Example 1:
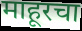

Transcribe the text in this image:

माहूरचा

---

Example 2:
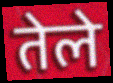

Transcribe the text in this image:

तेले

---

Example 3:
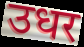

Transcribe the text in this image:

उधर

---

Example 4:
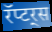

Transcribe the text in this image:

रॅप्टर्स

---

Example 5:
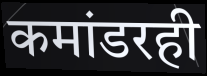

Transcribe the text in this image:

कमांडरही